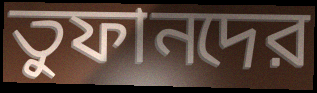
তুফানদের